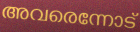
അവരെന്നോട്